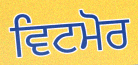
ਵਿਟਮੋਰ